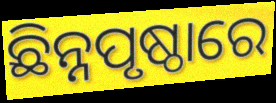
ଛିନ୍ନପୃଷ୍ଠାରେ